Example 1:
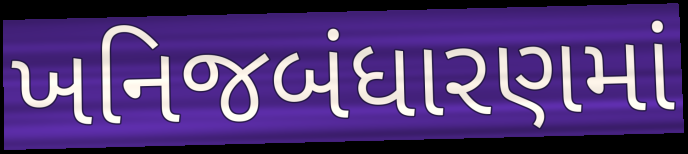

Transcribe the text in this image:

ખનિજબંધારણમાં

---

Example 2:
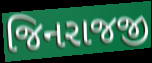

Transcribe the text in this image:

જિનરાજજી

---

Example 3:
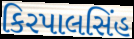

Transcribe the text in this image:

કિરપાલસિંહ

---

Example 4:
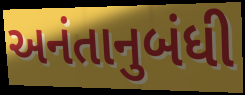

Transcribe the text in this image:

અનંતાનુબંધી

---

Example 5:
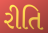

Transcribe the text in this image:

રીતિ